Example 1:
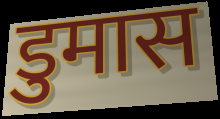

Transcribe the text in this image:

डुमास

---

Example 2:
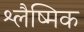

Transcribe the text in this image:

श्लैष्मिक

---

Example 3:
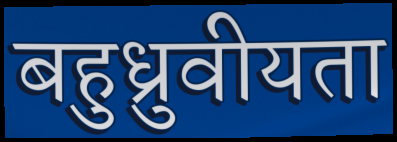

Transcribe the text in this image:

बहुध्रुवीयता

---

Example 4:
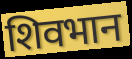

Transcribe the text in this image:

शिवभान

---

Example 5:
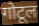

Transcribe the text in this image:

गोटूल